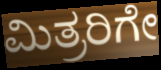
ಮಿತ್ರರಿಗೇ